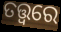
ତତ୍ତ୍ୱରେ